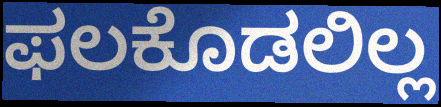
ಫಲಕೊಡಲಿಲ್ಲ